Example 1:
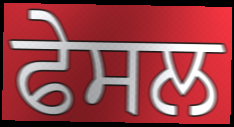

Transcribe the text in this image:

ਫੇਸਲ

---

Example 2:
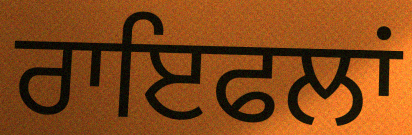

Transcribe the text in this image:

ਰਾਇਫਲਾਂ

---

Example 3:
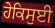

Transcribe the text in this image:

ਹੇਕਿਸੁਈ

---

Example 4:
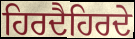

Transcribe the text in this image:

ਹਿਰਦੈਹਿਰਦੇ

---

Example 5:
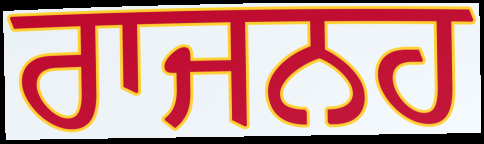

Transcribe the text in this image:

ਰਾਜਨਹ